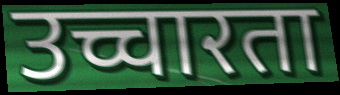
उच्चारता